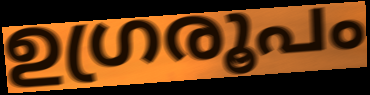
ഉഗ്രരൂപം